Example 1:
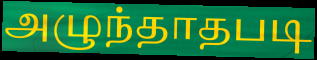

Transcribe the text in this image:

அழுந்தாதபடி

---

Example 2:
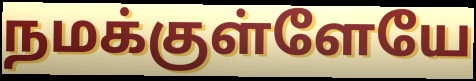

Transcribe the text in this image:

நமக்குள்ளேயே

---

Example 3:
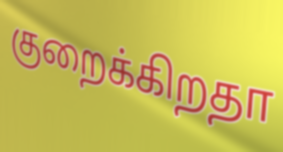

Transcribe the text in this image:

குறைக்கிறதா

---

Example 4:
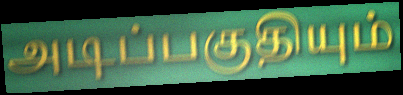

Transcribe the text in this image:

அடிப்பகுதியும்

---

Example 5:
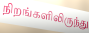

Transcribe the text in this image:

நிறங்களிலிருந்து